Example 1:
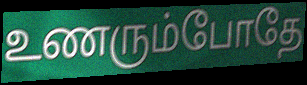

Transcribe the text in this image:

உணரும்போதே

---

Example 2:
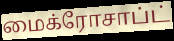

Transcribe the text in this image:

மைக்ரோசாப்ட்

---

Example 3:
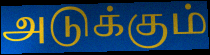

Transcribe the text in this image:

அடுக்கும்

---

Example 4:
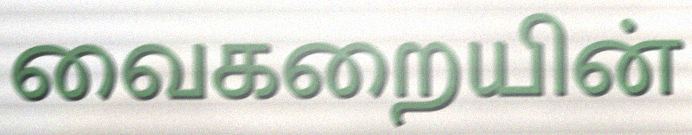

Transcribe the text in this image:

வைகறையின்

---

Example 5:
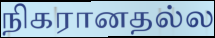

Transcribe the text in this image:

நிகரானதல்ல